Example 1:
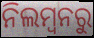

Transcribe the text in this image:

ନିଲମ୍ବନରୁ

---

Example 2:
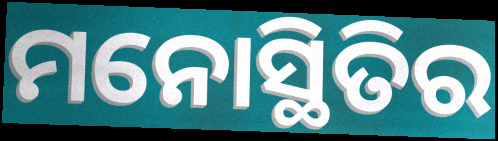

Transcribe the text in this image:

ମନୋସ୍ଥିତିର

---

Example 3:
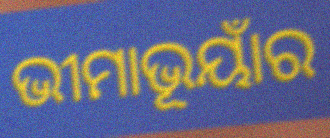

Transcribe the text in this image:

ଭୀମାଭୂୟାଁର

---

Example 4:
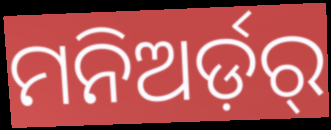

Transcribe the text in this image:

ମନିଅର୍ଡ଼ର୍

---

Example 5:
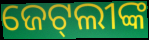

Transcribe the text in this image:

ଜେଟ୍‌ଲୀଙ୍କ